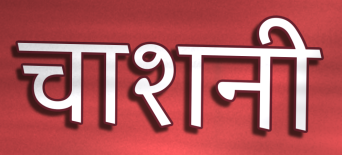
चाशनी